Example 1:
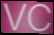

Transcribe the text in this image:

VC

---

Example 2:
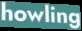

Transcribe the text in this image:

howling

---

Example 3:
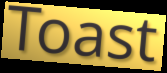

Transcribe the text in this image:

Toast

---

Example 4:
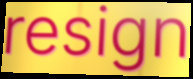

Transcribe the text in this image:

resign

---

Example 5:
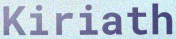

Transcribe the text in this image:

Kiriath